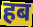
हब